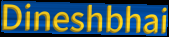
Dineshbhai